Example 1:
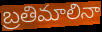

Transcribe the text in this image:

బ్రతిమాలినా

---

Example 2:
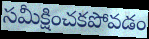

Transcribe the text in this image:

సమీక్షించకపోవడం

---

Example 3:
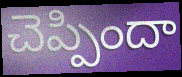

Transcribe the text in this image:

చెప్పిందా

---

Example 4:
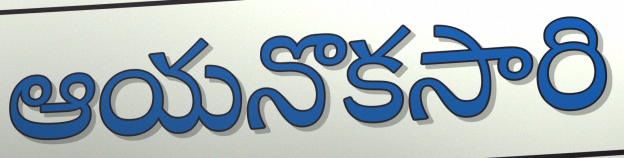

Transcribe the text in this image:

ఆయనొకసారి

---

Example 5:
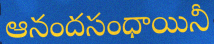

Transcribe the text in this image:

ఆనందసంధాయినీ